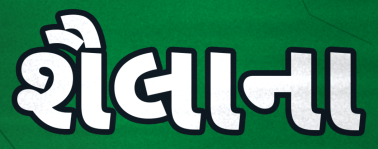
શૈલાના